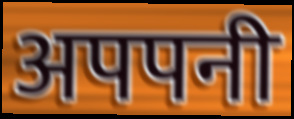
अपपनी